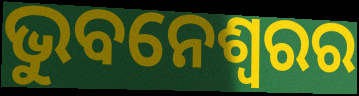
ଭୁବନେଶ୍ବରର